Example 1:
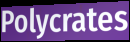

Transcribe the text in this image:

Polycrates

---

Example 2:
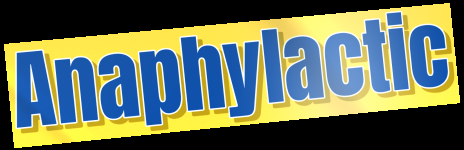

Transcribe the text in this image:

Anaphylactic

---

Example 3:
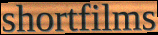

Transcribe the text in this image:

shortfilms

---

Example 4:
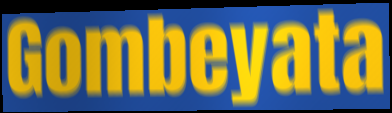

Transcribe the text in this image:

Gombeyata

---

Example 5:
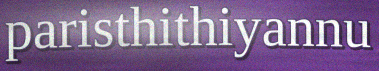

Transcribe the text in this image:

paristhithiyannu